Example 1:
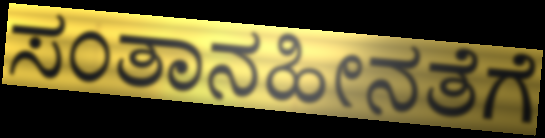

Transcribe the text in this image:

ಸಂತಾನಹೀನತೆಗೆ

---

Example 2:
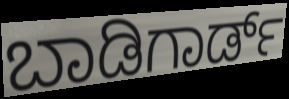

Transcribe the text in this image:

ಬಾಡಿಗಾರ್ಡ್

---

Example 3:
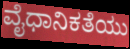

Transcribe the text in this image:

ವೈಧಾನಿಕತೆಯು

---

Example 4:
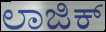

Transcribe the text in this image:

ಲಾಜಿಕ್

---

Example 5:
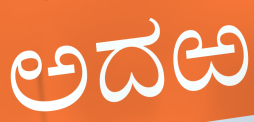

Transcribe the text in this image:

ಅದಱ